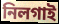
নিলগাই